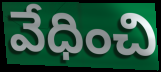
వేధించి